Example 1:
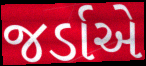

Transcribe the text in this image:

જર્ડાએ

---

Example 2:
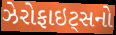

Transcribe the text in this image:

ઝેરોફાઇટ્સનો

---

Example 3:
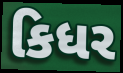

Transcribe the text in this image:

કિધર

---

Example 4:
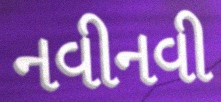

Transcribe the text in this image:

નવીનવી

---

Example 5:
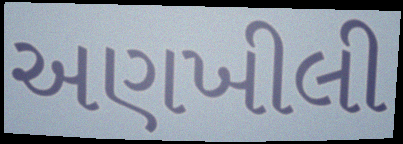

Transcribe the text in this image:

અણખીલી